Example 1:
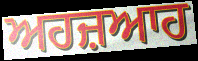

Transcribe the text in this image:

ਅਹਜ਼ਆਹ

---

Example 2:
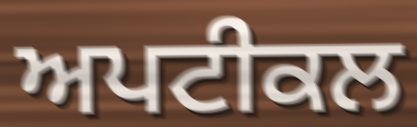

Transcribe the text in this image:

ਅਪਟੀਕਲ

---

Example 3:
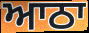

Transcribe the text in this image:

ਆਠਾ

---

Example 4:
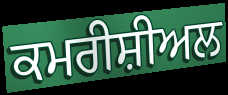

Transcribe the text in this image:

ਕਮਰੀਸ਼ੀਅਲ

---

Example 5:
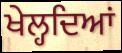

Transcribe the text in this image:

ਖੇਲ੍ਹਦਿਆਂ